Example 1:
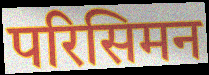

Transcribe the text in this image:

परिसिमन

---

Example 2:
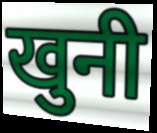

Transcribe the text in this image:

खुनी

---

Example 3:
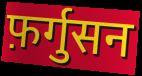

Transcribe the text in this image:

फ़र्गुसन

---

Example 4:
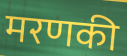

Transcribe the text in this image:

मरणकी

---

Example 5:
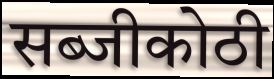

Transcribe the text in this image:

सब्जीकोठी